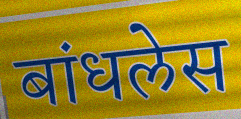
बांधलेस